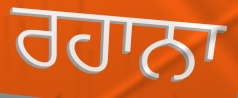
ਰਹਾਨਾ